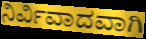
ನಿರ್ವಿವಾದವಾಗಿ